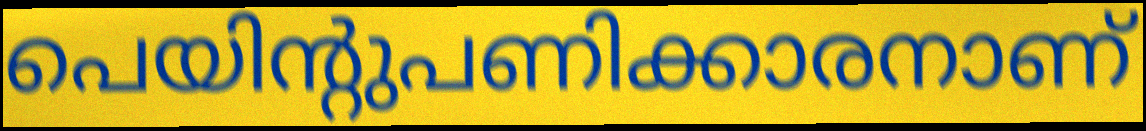
പെയിന്റുപണിക്കാരനാണ്